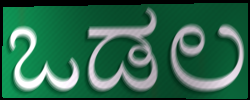
ಒಡಲ